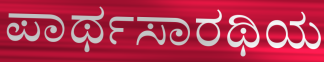
ಪಾರ್ಥಸಾರಥಿಯ